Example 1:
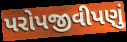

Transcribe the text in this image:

પરોપજીવીપણું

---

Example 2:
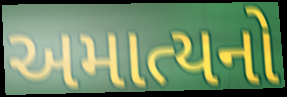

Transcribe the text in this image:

અમાત્યનો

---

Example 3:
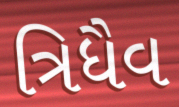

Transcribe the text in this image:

ત્રિધૈવ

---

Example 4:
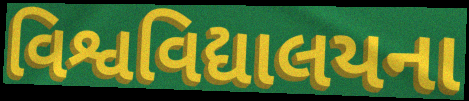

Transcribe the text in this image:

વિશ્વવિદ્યાલયના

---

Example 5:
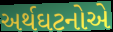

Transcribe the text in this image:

અર્થઘટનોએ